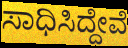
ಸಾಧಿಸಿದ್ದೇವೆ